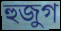
হুজুগ